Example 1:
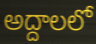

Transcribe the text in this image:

అద్దాలలో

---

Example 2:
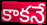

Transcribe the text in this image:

కాకనే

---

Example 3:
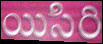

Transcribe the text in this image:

యిసిరి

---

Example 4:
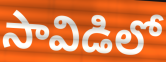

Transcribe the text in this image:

సావిడిలో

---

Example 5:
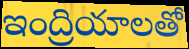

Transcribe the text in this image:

ఇంద్రియాలతో